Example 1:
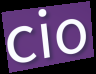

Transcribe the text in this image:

cio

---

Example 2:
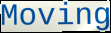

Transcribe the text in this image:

Moving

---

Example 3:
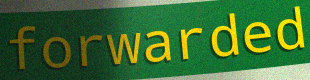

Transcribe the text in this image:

forwarded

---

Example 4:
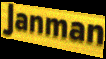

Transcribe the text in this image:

Janman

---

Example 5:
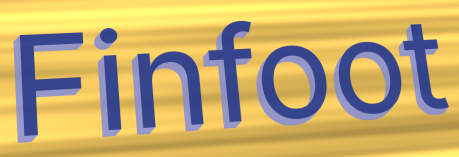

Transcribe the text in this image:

Finfoot